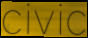
civic